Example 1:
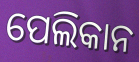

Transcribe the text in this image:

ପେଲିକାନ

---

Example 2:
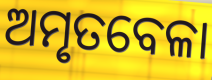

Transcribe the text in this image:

ଅମୃତବେଳା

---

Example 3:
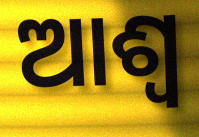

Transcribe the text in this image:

ଆଶ୍ୱ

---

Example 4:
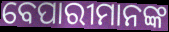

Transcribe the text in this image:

ବେପାରୀମାନଙ୍କ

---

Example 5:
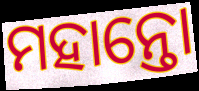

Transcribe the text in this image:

ମହାନ୍ତୋ